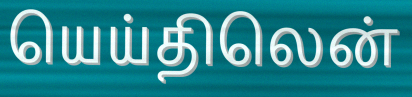
யெய்திலென்